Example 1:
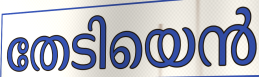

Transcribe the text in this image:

തേടിയെൻ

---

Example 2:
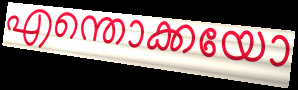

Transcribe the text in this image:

എന്തൊക്കയോ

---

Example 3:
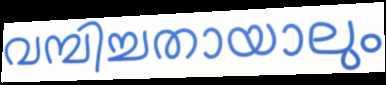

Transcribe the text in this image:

വമ്പിച്ചതായാലും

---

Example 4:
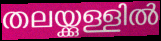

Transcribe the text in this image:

തലയ്ക്കുള്ളിൽ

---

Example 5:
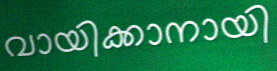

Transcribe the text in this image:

വായിക്കാനായി